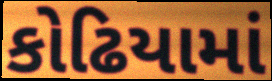
કોઢિયામાં